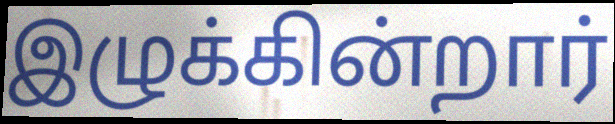
இழுக்கின்றார்